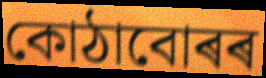
কোঠাবোৰৰ